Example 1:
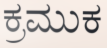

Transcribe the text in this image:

ಕ್ರಮುಕ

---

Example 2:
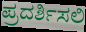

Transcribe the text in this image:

ಪ್ರದರ್ಶಿಸಲಿ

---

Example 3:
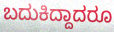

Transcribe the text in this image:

ಬದುಕಿದ್ದಾದರೂ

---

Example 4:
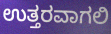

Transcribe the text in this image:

ಉತ್ತರವಾಗಲಿ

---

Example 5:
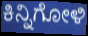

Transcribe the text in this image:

ಕಿನ್ನಿಗೋಳಿ